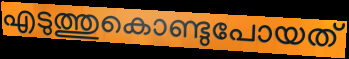
എടുത്തുകൊണ്ടുപോയത്